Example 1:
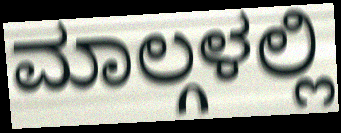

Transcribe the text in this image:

ಮಾಲ್ಗಳಲ್ಲಿ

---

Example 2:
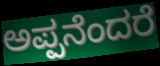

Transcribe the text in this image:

ಅಪ್ಪನೆಂದರೆ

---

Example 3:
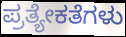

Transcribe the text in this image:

ಪ್ರತ್ಯೇಕತೆಗಳು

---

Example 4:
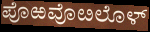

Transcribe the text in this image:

ಪೊಱವೊೞಲೊಳ್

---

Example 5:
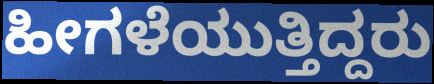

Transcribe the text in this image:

ಹೀಗಳೆಯುತ್ತಿದ್ದರು